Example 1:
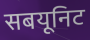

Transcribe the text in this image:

सबयूनिट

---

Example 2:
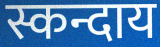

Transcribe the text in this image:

स्कन्दाय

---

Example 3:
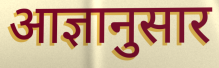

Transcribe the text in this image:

आज्ञानुसार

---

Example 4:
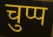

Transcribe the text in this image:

चुप्प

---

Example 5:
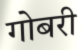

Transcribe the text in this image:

गोबरी